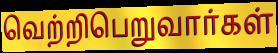
வெற்றிபெறுவார்கள்